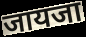
जायजा